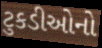
ટુકડીઓનો